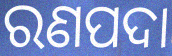
ରଣପଦା